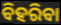
ବିହରିବା